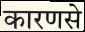
कारणसे